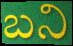
బని